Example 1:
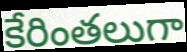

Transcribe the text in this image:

కేరింతలుగా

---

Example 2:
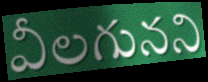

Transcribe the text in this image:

వీలగునని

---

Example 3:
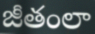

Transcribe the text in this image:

జీతంలా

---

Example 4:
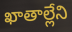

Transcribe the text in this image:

ఖాతాల్లేని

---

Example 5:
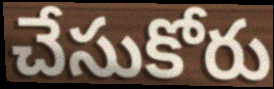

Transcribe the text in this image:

చేసుకోరు